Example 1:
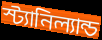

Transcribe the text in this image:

স্ট্যানিল্যান্ড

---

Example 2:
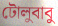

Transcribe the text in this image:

টোলুবাবু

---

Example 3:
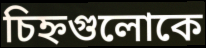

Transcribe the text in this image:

চিহ্নগুলোকে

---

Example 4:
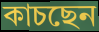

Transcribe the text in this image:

কাচছেন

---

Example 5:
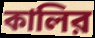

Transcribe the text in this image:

কালির